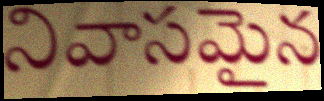
నివాసమైన